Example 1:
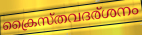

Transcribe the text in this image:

ക്രൈസ്തവദര്ശനം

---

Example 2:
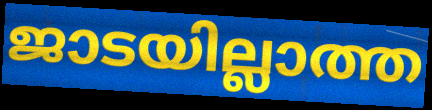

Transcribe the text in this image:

ജാടയില്ലാത്ത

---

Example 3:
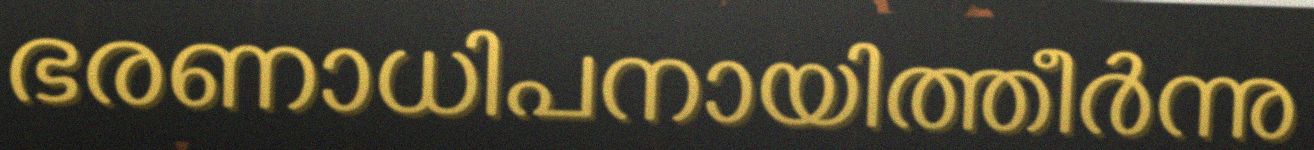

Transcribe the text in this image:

ഭരണാധിപനായിത്തീർന്നു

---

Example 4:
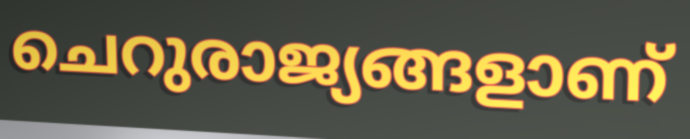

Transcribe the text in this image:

ചെറുരാജ്യങ്ങളാണ്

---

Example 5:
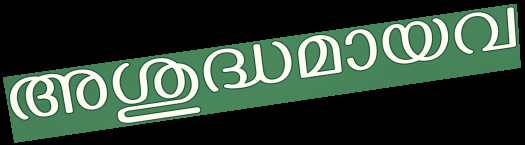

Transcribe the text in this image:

അശുദ്ധമായവ